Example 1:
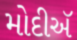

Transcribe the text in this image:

મોદીઍ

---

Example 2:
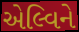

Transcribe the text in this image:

એલ્વિને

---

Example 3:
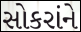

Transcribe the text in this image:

સોકરાંને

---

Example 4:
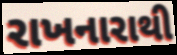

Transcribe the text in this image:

રાખનારાથી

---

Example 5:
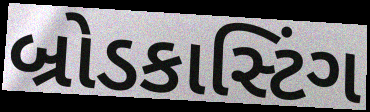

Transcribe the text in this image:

બ્રોડકાસ્ટિંગ